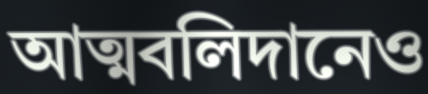
আত্মবলিদানেও